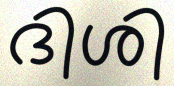
ദിശി